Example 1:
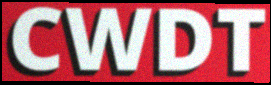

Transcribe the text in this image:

CWDT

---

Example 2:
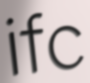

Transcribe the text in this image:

ifc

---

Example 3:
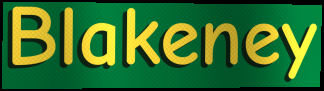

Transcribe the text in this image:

Blakeney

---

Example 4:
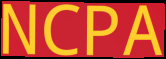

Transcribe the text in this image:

NCPA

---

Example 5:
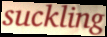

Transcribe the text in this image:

suckling